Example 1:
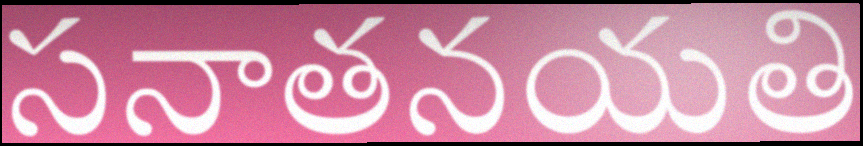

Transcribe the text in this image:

సనాతనయతి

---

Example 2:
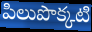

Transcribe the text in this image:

పిలుపొక్కటి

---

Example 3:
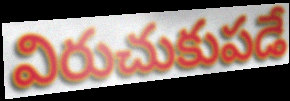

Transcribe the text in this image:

విరుచుకుపడే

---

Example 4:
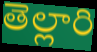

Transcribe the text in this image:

తెల్లారి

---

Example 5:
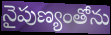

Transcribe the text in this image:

నైపుణ్యంతోను